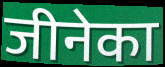
जीनेका